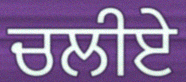
ਚਲੀਏ